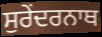
ਸੁਰੇਂਦਰਨਾਥ